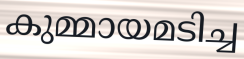
കുമ്മായമടിച്ച